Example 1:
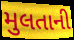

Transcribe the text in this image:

મુલતાની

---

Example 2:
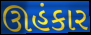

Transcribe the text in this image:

ઊહંકાર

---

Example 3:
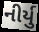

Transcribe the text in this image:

નીર્યુ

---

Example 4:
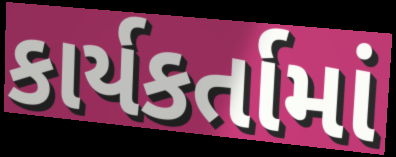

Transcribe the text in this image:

કાર્યકર્તામાં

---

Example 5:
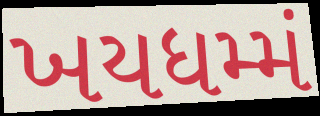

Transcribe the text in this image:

ખયધમ્મં